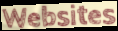
Websites